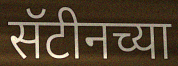
सॅटीनच्या